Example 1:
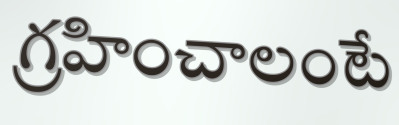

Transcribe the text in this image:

గ్రహించాలంటే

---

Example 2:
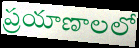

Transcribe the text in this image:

ప్రయాణాలలో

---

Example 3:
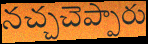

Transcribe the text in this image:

నచ్చచెప్పారు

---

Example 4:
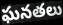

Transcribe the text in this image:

ఘనతలు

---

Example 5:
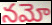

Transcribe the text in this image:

నమో